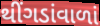
થીંગડાંવાળાં